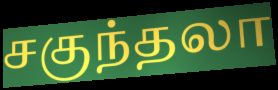
சகுந்தலா